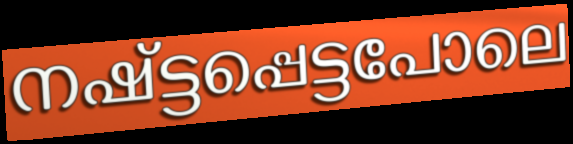
നഷ്ട്ടപ്പെട്ടപോലെ